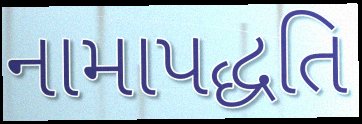
નામાપદ્ધતિ